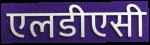
एलडीएसी